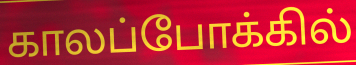
காலப்போக்கில்